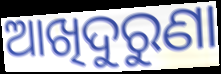
ଆଖିଦୁରୁଣା